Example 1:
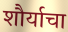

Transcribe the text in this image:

शौर्याचा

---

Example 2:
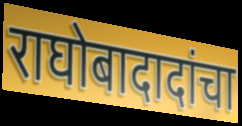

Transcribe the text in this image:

राघोबादादांचा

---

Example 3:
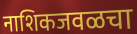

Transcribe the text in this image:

नाशिकजवळचा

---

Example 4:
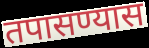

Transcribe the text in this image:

तपासण्यास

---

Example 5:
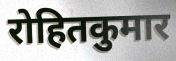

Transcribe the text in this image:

रोहितकुमार